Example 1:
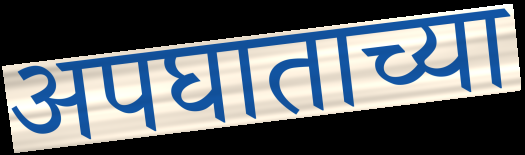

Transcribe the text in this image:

अपघाताच्या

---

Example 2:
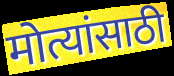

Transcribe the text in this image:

मोत्यांसाठी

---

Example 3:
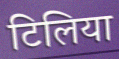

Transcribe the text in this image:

टिलिया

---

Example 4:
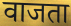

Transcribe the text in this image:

वाजता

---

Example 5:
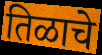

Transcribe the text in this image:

तिळाचे